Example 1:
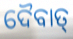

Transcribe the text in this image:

ଦୈବାତ୍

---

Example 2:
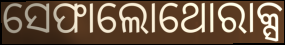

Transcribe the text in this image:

ସେଫାଲୋଥୋରାକ୍ସ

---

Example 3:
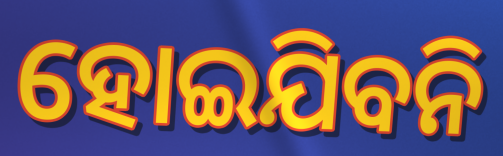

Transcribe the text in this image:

ହୋଇଯିବନି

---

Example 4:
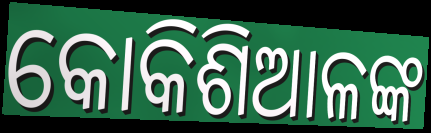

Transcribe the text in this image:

କୋକିଶିଆଳଙ୍କ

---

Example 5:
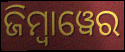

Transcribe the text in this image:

ଜିମ୍ୱାୱେର